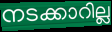
നടക്കാറില്ല